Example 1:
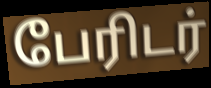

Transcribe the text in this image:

பேரிடர்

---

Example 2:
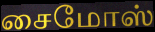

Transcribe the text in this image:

சைமோஸ்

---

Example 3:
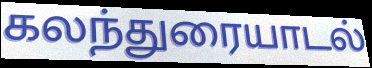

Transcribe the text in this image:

கலந்துரையாடல்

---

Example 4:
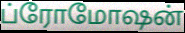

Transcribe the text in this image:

ப்ரோமோஷன்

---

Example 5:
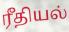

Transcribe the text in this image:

ரீதியல்